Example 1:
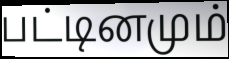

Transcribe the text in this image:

பட்டினமும்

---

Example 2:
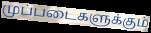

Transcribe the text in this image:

முப்படைகளுக்கும்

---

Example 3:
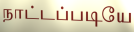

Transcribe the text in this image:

நாட்டப்படியே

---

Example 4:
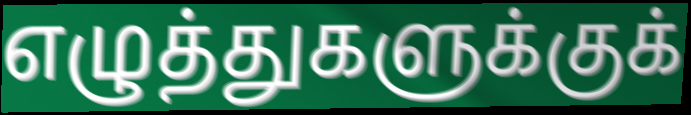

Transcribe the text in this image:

எழுத்துகளுக்குக்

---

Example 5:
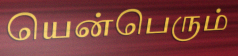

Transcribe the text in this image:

யென்பெரும்